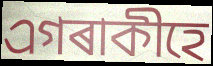
এগৰাকীহে